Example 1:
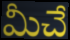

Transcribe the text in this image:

మీచే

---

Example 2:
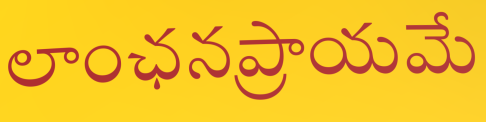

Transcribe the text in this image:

లాంఛనప్రాయమే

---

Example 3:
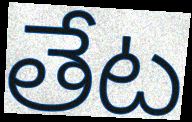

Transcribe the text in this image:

తేట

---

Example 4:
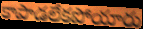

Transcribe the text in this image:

కాపాడలేకపోయారు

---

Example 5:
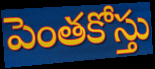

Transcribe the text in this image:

పెంతకోస్తు